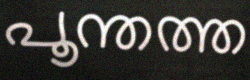
പൂന്തത്ത